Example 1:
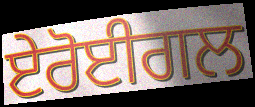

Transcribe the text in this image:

ਏਰੋਈਗਲ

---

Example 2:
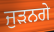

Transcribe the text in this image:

ਜੁਡ਼ਨਗੇ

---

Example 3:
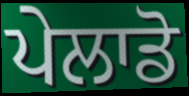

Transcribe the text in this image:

ਪੇਲਾਡੋ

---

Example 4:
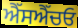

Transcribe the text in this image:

ਐੱਸਐੱਚਓ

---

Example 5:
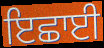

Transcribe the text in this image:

ਇਛਾਈ